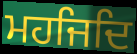
ਮਹਜਿਦਿ